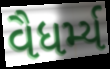
વૈધર્મ્ય